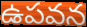
ఉపవన